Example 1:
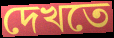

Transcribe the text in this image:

দেখতে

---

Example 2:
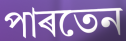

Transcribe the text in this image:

পাৰতেন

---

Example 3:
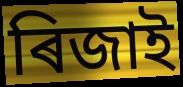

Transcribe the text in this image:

ৰিজাই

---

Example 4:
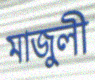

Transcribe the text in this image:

মাজুলী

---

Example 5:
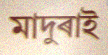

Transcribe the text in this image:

মাদুৰাই